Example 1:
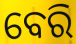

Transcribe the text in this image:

ବେରି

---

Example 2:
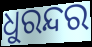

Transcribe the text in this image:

ଧୁରନ୍ଦର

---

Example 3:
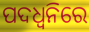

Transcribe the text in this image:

ପଦଧ୍ୱନିରେ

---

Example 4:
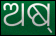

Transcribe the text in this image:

ଅଷ୍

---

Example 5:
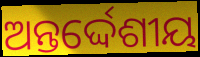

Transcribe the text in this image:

ଅନ୍ତର୍ଦ୍ଦେଶୀୟ